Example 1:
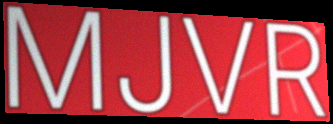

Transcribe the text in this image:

MJVR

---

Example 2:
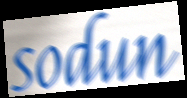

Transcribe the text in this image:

sodun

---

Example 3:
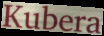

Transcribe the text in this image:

Kubera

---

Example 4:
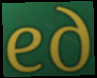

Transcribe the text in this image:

ed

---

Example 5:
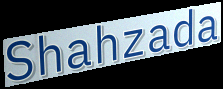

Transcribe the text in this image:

Shahzada